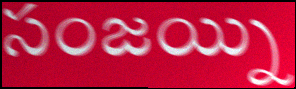
సంజయ్ని